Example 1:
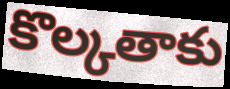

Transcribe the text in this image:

కొల్కతాకు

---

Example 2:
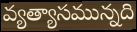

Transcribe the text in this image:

వ్యత్యాసమున్నది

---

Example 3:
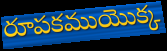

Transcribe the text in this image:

రూపకముయొక్క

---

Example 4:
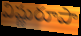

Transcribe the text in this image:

విష్ణురూపా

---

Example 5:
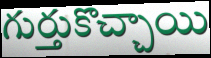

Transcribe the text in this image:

గుర్తుకొచ్చాయి